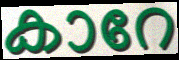
കാറേ